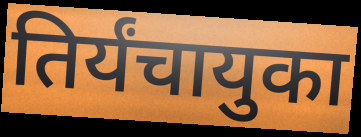
तिर्यंचायुका